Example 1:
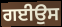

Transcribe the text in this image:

ਗਈਉਸ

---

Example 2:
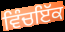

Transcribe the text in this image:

ਵਿੰਚਇੱਕ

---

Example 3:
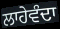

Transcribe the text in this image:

ਲਾਹੇਵੰਦਾ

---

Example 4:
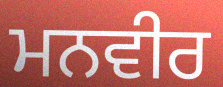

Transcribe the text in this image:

ਮਨਵੀਰ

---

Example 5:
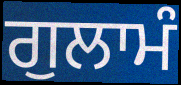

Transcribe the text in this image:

ਗੁਲਾਮੰ